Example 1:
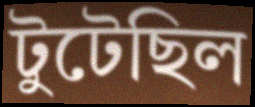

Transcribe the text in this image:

টুটেছিল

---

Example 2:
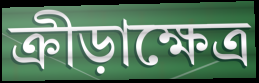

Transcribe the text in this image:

ক্রীড়াক্ষেত্র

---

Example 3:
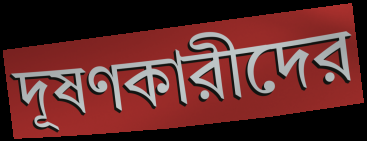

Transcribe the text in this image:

দূষণকারীদের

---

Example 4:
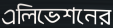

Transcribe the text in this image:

এলিভেশনের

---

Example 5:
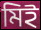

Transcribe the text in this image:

মিই